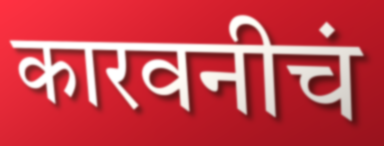
कारवनीचं